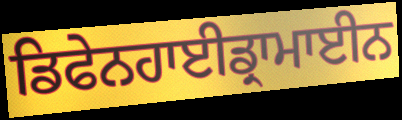
ਡਿਫੇਨਹਾਈਡ੍ਰਾਮਾਈਨ